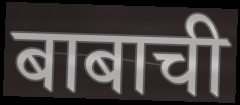
बाबाची